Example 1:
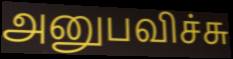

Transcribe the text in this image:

அனுபவிச்சு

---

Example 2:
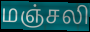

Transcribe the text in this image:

மஞ்சலி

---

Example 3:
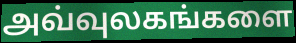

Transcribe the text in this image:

அவ்வுலகங்களை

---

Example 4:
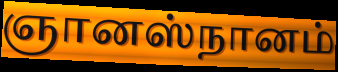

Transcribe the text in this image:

ஞானஸ்நானம்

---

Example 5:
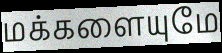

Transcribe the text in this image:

மக்களையுமே